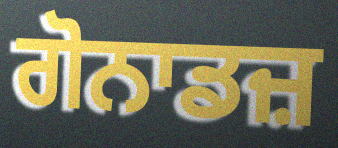
ਗੋਨਾਡਜ਼